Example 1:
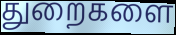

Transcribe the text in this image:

துறைகளை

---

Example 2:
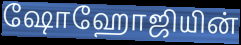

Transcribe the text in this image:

ஷோஹோஜியின்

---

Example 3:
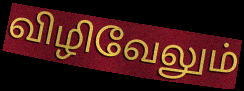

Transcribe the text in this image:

விழிவேலும்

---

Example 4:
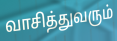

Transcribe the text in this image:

வாசித்துவரும்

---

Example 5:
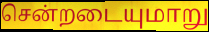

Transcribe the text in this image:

சென்றடையுமாறு